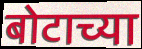
बोटाच्या